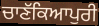
ਚਾਣੱਕਿਆਪੁਰੀ